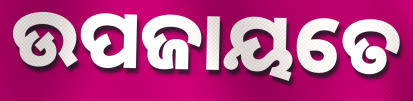
ଉପଜାୟତେ